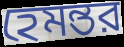
হেমন্তর